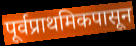
पूर्वप्राथमिकपासून